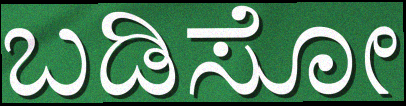
ಬಡಿಸೋ